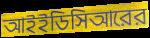
আইইডিসিআরের